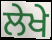
ਲੇਖੇ